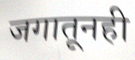
जगातूनही